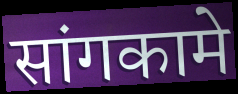
सांगकामे